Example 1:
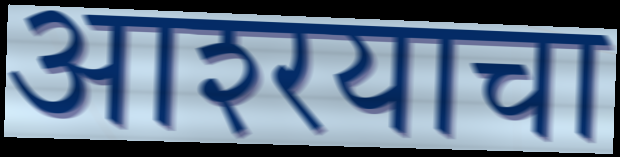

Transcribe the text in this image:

आश्रयाचा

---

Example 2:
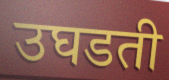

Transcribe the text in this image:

उघडती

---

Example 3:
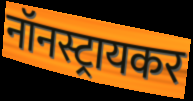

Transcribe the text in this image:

नॉनस्ट्रायकर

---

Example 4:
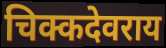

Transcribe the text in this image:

चिक्कदेवराय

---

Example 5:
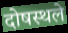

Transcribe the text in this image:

दोषस्थले